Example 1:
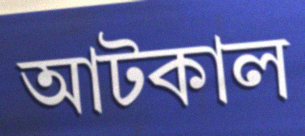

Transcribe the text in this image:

আটকাল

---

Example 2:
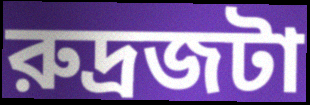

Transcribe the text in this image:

রুদ্রজটা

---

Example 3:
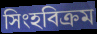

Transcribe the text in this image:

সিংহবিক্রম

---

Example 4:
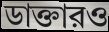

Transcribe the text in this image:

ডাক্তারও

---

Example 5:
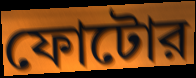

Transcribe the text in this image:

ফোটোর